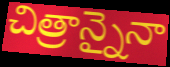
చిత్రాన్నైనా